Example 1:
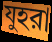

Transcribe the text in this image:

যুহরা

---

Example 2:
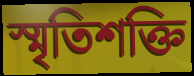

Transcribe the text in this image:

স্মৃতিশক্তি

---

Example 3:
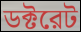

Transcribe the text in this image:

ডক্টরেট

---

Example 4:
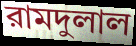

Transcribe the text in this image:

রামদুলাল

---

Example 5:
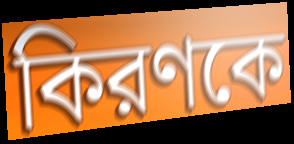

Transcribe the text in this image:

কিরণকে